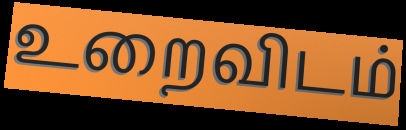
உறைவிடம்